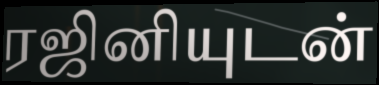
ரஜினியுடன்